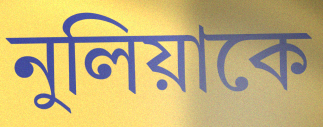
নুলিয়াকে